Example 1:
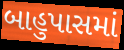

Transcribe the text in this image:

બાહુપાસમાં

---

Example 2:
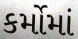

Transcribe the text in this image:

કર્મોમાં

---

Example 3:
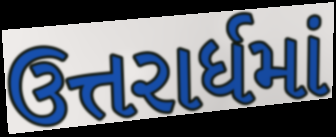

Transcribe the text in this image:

ઉત્તરાર્ધમાં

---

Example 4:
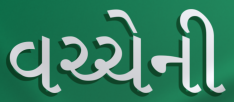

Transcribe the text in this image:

વચ્ચેની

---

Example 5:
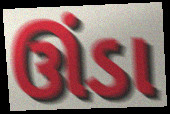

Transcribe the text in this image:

ઊંડા